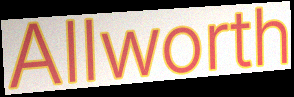
Allworth